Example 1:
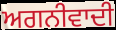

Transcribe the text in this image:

ਅਗਨੀਵਾਦੀ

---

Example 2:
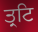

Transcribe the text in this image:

ਤ੍ਰਟਿ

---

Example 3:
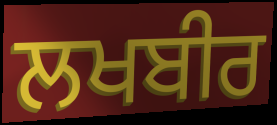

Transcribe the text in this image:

ਲਖਬੀਰ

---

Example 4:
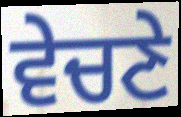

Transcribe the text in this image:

ਵੇਚਣੇ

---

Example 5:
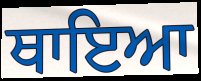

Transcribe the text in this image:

ਥਾਇਆ